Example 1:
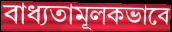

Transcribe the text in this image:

বাধ্যতামূলকভাবে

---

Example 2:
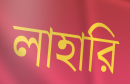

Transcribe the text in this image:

লাহারি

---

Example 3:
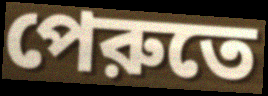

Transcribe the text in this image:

পেরুতে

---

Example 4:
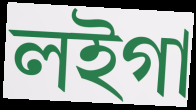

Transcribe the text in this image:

লইগা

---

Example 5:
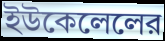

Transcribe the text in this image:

ইউকেলেলের